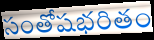
సంతోషభరితం